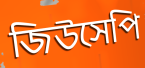
জিউসেপি